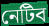
নেটিব